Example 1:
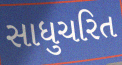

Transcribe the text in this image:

સાધુચરિત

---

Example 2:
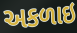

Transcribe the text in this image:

અકળાઇ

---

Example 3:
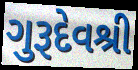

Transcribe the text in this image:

ગુરૂદેવશ્રી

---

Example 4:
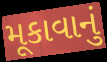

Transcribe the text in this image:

મૂકાવાનું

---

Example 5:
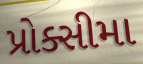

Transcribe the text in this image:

પ્રોક્સીમા